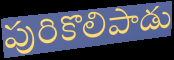
పురికొలిపాడు